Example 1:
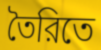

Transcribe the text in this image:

তৈরিতে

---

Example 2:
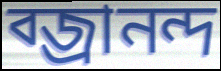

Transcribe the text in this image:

ব্জ্রানন্দ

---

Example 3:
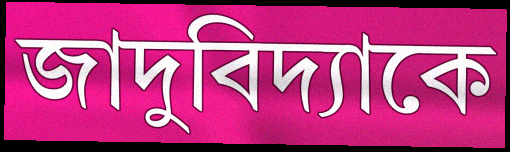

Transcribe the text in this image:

জাদুবিদ্যাকে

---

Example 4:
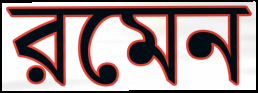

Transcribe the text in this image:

রমেন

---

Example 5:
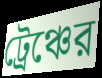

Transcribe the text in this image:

ট্রেঞ্চের